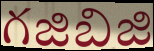
గజిబిజి